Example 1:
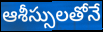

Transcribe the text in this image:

ఆశీస్సులతోనే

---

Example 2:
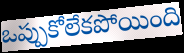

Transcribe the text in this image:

ఒప్పుకోలేకపోయింది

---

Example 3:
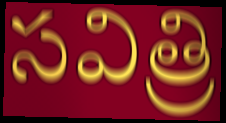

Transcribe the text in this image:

సవిత్రి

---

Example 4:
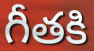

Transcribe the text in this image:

గీతకి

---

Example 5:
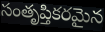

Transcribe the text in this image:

సంతృప్తికరమైన